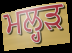
ਮਲ੍ਹੜ